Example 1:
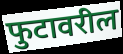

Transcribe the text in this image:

फुटावरील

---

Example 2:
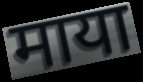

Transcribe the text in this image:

माया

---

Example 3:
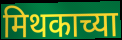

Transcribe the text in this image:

मिथकाच्या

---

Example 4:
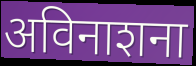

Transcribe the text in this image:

अविनाशना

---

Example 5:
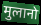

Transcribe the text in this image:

मुलानो